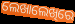
ଲେଖାଲେଖିରେ